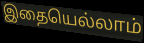
இதையெல்லாம்